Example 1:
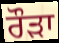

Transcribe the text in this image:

ਰੌੜਾ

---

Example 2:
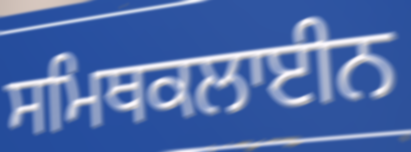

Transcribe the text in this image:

ਸਮਿਥਕਲਾਈਨ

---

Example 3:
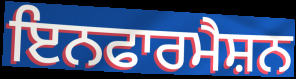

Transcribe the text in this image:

ਇਨਫਾਰਮੈਸ਼ਨ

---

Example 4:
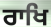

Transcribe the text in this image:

ਰਾਖਿ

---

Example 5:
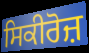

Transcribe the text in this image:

ਸਿਕੀਰੋਜ਼